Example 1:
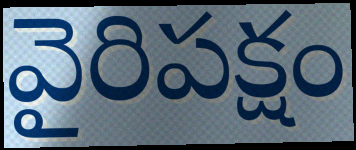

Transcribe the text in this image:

వైరిపక్షం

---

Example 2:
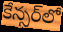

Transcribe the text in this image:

కేన్సర్‌లో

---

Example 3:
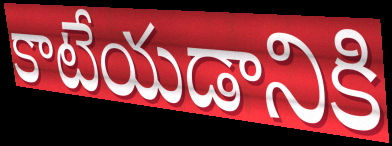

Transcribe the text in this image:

కాటేయడానికి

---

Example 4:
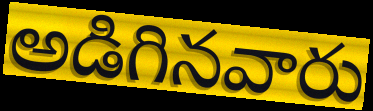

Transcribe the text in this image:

అడిగినవారు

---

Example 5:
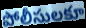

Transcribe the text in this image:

పోలీసులకూ